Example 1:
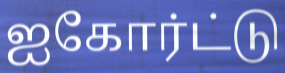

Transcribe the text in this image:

ஐகோர்ட்டு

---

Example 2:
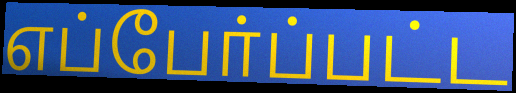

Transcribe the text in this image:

எப்பேர்ப்பட்ட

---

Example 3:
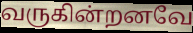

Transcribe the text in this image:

வருகின்றனவே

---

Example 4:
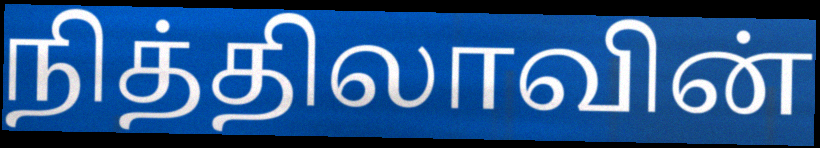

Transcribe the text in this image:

நித்திலாவின்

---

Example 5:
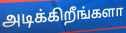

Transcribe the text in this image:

அடிக்கிறீங்களா